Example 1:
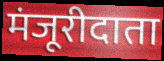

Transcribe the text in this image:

मंजूरीदाता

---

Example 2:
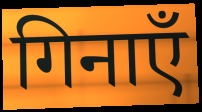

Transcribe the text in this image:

गिनाएँ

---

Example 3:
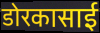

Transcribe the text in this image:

डोरकासाई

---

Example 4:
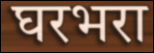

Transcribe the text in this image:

घरभरा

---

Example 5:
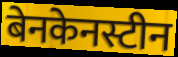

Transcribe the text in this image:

बेनकेनस्टीन